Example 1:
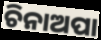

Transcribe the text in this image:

ଚିନାଅପା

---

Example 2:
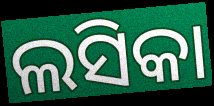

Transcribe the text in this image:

ଲସିକା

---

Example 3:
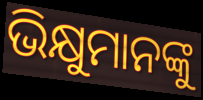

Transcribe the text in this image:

ଭିକ୍ଷୁମାନଙ୍କୁ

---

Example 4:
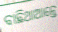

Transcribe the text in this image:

ବାଛିଥାଆନ୍ତେ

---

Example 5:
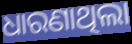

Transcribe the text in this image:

ଧାରଣାଥିଲା